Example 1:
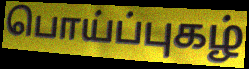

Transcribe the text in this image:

பொய்ப்புகழ்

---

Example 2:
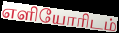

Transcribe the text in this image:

எளியோரிடம்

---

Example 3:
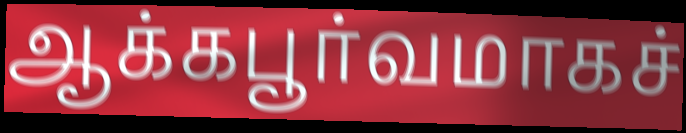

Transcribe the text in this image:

ஆக்கபூர்வமாகச்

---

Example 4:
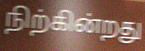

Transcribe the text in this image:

நிற்கின்றது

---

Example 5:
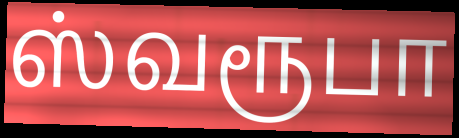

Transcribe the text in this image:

ஸ்வரூபா